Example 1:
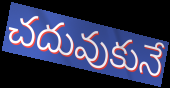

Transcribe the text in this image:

చదువుకునే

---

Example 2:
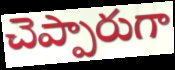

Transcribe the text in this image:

చెప్పారుగా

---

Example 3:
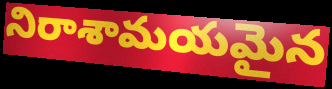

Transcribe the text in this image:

నిరాశామయమైన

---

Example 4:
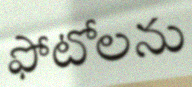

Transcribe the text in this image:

ఫోటోలను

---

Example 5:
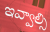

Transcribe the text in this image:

ఇవ్వాల్సి